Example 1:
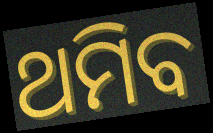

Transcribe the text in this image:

ଥମିବ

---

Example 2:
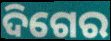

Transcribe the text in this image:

ଦିଗେର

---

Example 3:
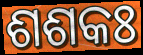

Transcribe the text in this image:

ଶଶକଃ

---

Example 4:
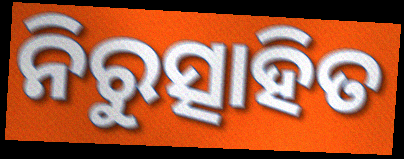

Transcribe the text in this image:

ନିରୁତ୍ସାହିତ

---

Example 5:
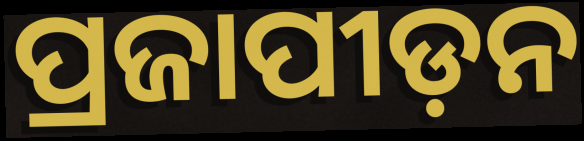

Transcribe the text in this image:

ପ୍ରଜାପୀଡ଼ନ